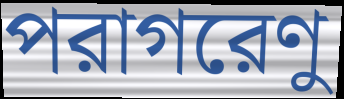
পরাগরেণু